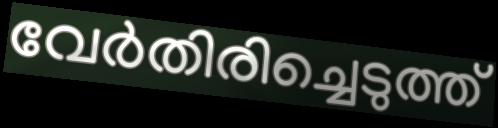
വേർതിരിച്ചെടുത്ത്